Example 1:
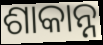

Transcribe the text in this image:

ଶାକାନ୍ନ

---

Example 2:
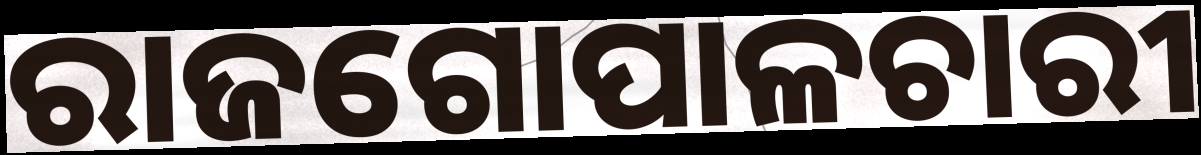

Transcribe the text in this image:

ରାଜଗୋପାଳଚାରୀ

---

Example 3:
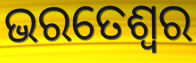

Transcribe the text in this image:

ଭରତେଶ୍ଵର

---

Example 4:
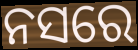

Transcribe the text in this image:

ନସରେ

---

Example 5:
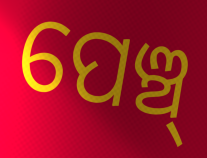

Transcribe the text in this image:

ପେଞ୍ଚ୍